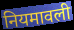
नियमावली